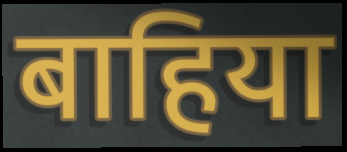
बाहिया